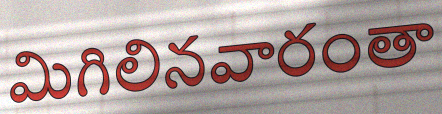
మిగిలినవారంతా